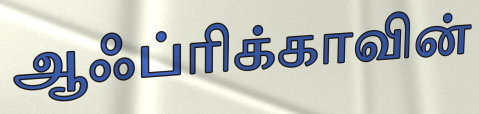
ஆஃப்ரிக்காவின்